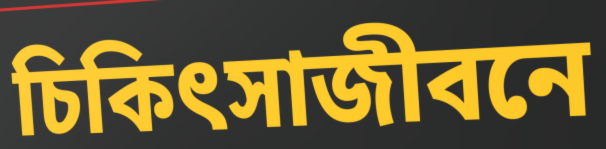
চিকিৎসাজীবনে